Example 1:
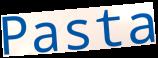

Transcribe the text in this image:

Pasta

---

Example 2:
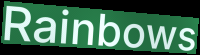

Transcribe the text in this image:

Rainbows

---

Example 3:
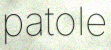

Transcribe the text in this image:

patole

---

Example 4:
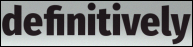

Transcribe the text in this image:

definitively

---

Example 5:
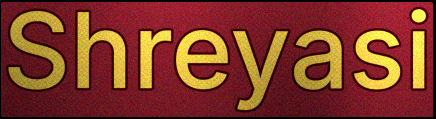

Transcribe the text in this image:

Shreyasi